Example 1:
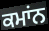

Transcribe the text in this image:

ਕਮਾਂਨ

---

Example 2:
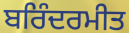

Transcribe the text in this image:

ਬਰਿੰਦਰਮੀਤ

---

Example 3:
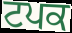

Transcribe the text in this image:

ਟਪਕ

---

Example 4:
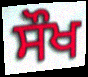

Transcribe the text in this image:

ਸੌਖ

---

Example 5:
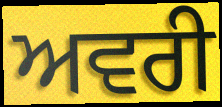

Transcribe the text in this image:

ਅਵਰੀ